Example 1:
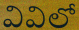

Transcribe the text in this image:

వివిలో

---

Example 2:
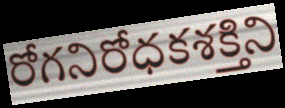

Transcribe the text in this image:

రోగనిరోధకశక్తిని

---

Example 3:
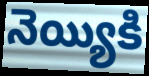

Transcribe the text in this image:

నెయ్యికి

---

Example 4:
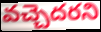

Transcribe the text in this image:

వచ్చెదరని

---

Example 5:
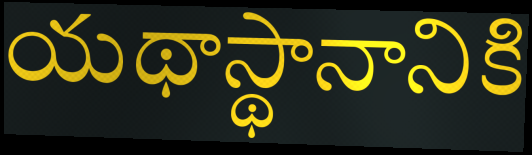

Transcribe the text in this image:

యథాస్థానానికి